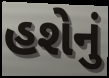
હશેનું